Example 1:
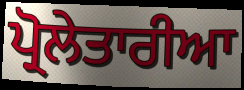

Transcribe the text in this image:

ਪ੍ਰੋਲੇਤਾਰੀਆ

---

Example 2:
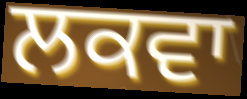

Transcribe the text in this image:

ਲਕਵਾ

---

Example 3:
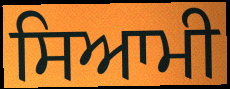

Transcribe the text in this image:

ਸਿਆਮੀ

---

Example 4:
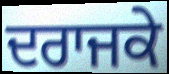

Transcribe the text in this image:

ਦਰਾਜਕੇ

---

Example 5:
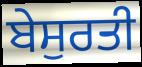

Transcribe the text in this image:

ਬੇਸੁਰਤੀ